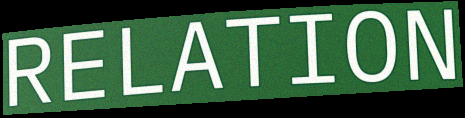
RELATION